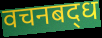
वचनबद्ध